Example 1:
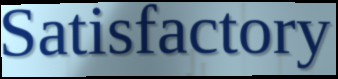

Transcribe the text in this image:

Satisfactory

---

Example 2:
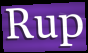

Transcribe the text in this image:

Rup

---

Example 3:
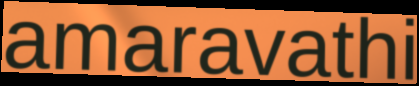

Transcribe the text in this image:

amaravathi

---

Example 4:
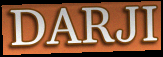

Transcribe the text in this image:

DARJI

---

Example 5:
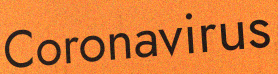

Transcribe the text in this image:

Coronavirus